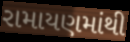
રામાયણમાંથી